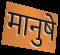
मानुषे